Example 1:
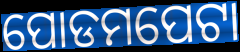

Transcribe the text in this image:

ପୋଡମପେଟା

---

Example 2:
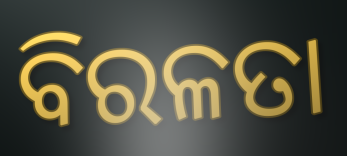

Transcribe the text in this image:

ବିରଳତା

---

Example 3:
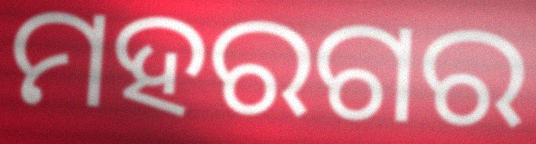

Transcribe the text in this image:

ମହରଗର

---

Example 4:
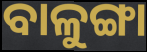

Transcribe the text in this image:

ବାଳୁଙ୍ଗା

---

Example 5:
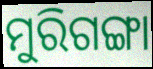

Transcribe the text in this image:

ମୁରିଗଙ୍ଗା